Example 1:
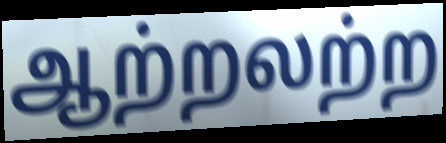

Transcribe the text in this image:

ஆற்றலற்ற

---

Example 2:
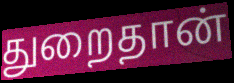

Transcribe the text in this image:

துறைதான்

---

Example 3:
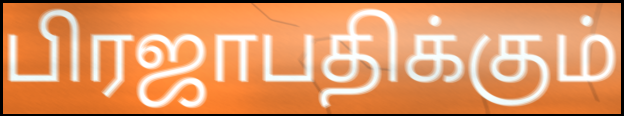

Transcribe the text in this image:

பிரஜாபதிக்கும்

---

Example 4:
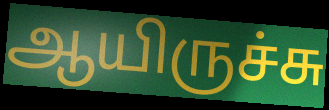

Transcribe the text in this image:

ஆயிருச்சு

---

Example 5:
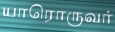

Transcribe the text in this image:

யாரொருவர்